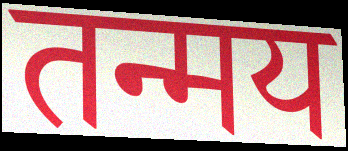
तन्मय